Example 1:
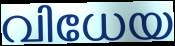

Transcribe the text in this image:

വിധേയ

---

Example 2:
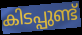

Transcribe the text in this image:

കിടപ്പുണ്ട്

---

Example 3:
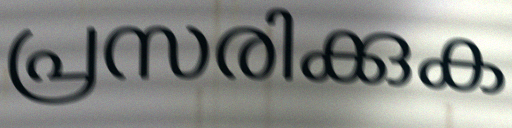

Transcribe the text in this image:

പ്രസരിക്കുക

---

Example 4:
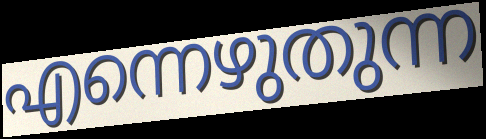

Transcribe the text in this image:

എന്നെഴുതുന്ന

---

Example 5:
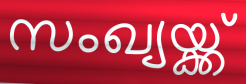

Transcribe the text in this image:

സംഖ്യയ്ക്ക്